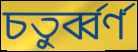
চতুর্ব্বর্ণ